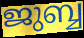
ജുബ്ബ